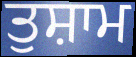
ਤੁਸ਼ਾਮ